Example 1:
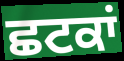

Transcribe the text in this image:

ਛਟਕਾਂ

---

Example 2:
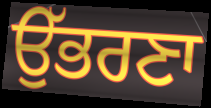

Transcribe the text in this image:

ਉੱਭਰਣਾ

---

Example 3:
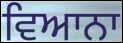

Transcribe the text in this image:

ਵਿਆਨਾ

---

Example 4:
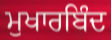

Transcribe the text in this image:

ਮੁਖਾਰਬਿੰਦ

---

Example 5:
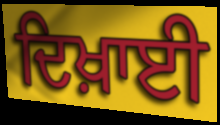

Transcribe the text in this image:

ਦਿਖ਼ਾਈ